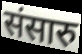
संसारु